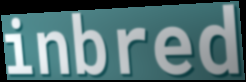
inbred